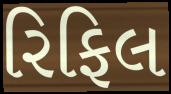
રિફિલ